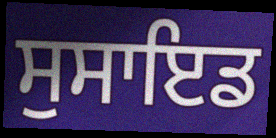
ਸੁਸਾਇਡ